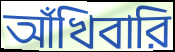
আঁখিবারি